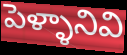
పెళ్ళానివి